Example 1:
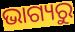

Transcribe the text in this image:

ଭାଗ୍ୟରୁ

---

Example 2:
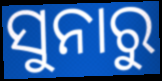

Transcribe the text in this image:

ସୁନାରୁ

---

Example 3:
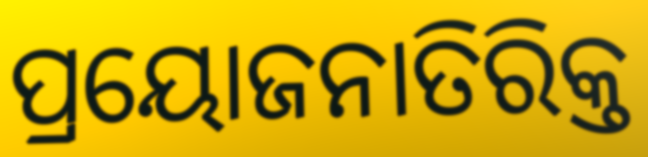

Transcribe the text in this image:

ପ୍ରୟୋଜନାତିରିକ୍ତ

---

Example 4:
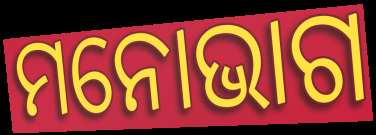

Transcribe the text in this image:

ମନୋଭାଗ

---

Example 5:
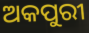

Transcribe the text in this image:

ଅକପୁରୀ